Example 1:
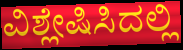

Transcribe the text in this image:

ವಿಶ್ಲೇಷಿಸಿದಲ್ಲಿ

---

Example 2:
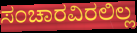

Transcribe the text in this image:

ಸಂಚಾರವಿರಲಿಲ್ಲ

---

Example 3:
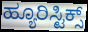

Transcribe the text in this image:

ಹ್ಯೂರಿಸ್ಟಿಕ್ಸ್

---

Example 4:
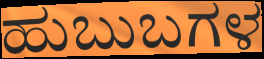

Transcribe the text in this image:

ಹುಬುಬಗಳ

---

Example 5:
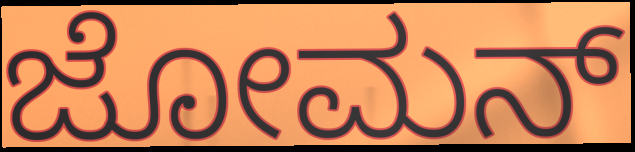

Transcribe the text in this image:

ಜೋಮನ್